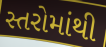
સ્તરોમાંથી